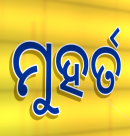
ମୁହର୍ତ